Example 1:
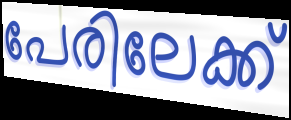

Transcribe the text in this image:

പേരിലേക്ക്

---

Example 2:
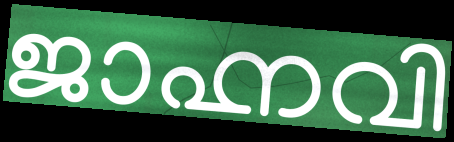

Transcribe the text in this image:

ജാഹ്നവി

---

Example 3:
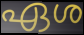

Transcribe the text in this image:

ഏശ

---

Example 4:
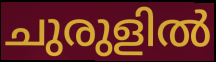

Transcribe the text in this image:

ചുരുളിൽ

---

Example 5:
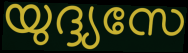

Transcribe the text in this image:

യുദ്ദ്യസേ